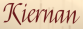
Kiernan